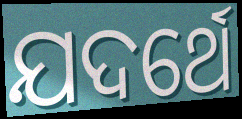
ଯଦର୍ଥେ